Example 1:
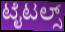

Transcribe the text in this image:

ಟೈಟಲ್ಸ್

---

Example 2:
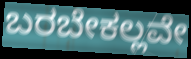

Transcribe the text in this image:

ಬರಬೇಕಲ್ಲವೇ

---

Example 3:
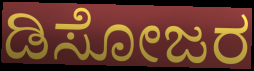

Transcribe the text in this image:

ಡಿಸೋಜರ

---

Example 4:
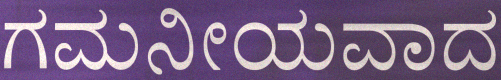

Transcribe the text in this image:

ಗಮನೀಯವಾದ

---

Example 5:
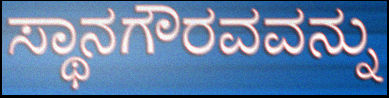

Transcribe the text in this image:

ಸ್ಥಾನಗೌರವವನ್ನು